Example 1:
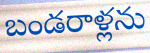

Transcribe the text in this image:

బండరాళ్లను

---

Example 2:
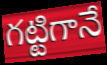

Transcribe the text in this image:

గట్టిగానే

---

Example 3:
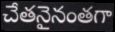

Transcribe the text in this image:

చేతనైనంతగా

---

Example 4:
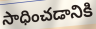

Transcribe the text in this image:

సాధించడానికి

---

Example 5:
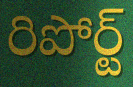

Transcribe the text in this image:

రిపోర్ట్